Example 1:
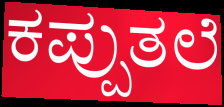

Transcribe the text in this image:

ಕಪ್ಪುತಲೆ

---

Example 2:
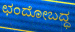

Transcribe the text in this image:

ಛಂದೋಬದ್ಧ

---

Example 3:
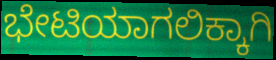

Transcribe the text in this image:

ಭೇಟಿಯಾಗಲಿಕ್ಕಾಗಿ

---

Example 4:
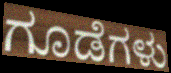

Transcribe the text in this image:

ಗೂಡೆಗಳು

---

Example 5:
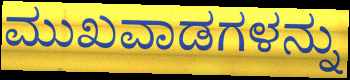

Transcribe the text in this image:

ಮುಖವಾಡಗಳನ್ನು